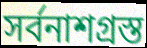
সর্বনাশগ্রস্ত